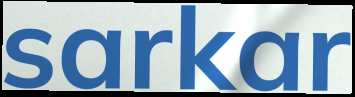
sarkar